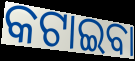
କଟାଇବା